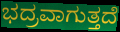
ಭದ್ರವಾಗುತ್ತದೆ